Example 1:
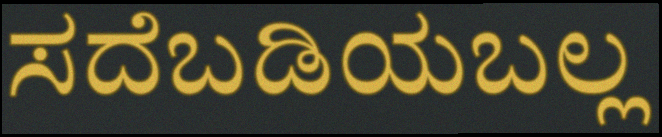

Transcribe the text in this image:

ಸದೆಬಡಿಯಬಲ್ಲ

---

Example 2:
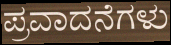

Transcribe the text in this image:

ಪ್ರವಾದನೆಗಳು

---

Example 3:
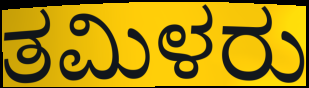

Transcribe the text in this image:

ತಮಿಳರು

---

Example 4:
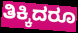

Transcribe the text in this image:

ತಿಕ್ಕಿದರೂ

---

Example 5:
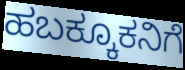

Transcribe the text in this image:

ಹಬಕ್ಕೂಕನಿಗೆ